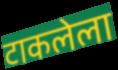
टाकलेला